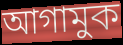
আগামুক